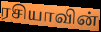
ரசியாவின்